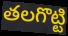
తలగొట్టి